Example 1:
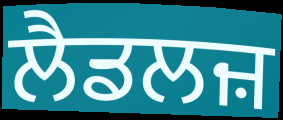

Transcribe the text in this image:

ਲੈਡਲਜ਼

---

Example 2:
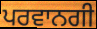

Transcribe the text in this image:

ਪਰਵਾਨਗੀ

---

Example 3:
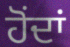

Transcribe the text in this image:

ਹੋਂਦਾਂ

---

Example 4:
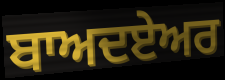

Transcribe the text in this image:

ਬਾਅਦਏਅਰ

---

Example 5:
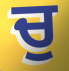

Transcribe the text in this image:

ਚੁ